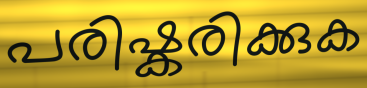
പരിഷ്കരിക്കുക